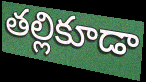
తల్లికూడా